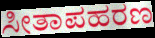
ಸೀತಾಪಹರಣ